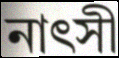
নাৎসী